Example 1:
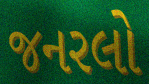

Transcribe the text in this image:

જનરલો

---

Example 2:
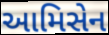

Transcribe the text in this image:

આમિસેન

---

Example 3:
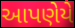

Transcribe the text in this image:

આપણેયે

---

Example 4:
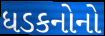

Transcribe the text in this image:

ધડકનોનો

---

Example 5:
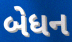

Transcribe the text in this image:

બેધન